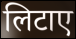
लिटाए